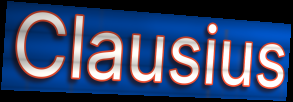
Clausius